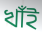
খাঁই